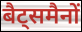
बैट्समैनों